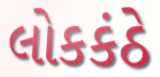
લોકકંઠે